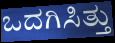
ಒದಗಿಸಿತ್ತು